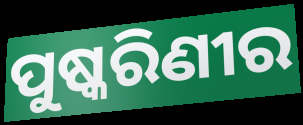
ପୁଷ୍କରିଣୀର